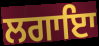
ਲਗਾਇਾ